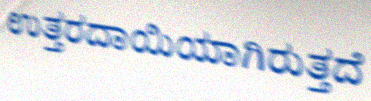
ಉತ್ತರದಾಯಿಯಾಗಿರುತ್ತದೆ